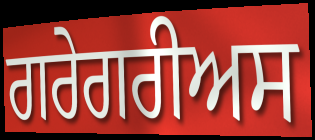
ਗਰੇਗਰੀਅਸ